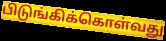
பிடுங்கிக்கொள்வது